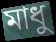
মাধু